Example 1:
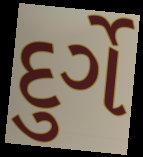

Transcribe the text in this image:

દુર્ગે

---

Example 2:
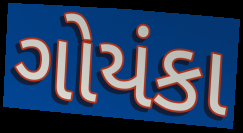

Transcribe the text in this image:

ગોયંકા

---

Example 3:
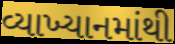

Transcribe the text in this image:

વ્યાખ્યાનમાંથી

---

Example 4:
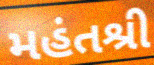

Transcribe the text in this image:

મહંતશ્રી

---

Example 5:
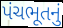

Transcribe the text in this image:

પંચભૂતનું